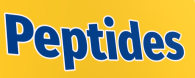
Peptides